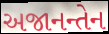
અજાનન્તેન